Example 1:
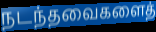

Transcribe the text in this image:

நடந்தவைகளைத்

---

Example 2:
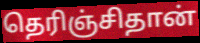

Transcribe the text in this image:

தெரிஞ்சிதான்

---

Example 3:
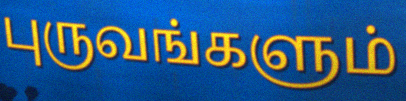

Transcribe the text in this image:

புருவங்களும்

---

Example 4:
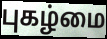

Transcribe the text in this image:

புகழ்மை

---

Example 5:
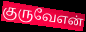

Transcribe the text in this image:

குருவேஎன்